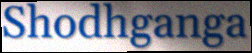
Shodhganga